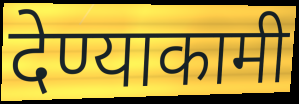
देण्याकामी